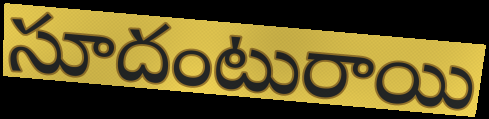
సూదంటురాయి